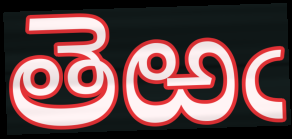
తెఱఁ